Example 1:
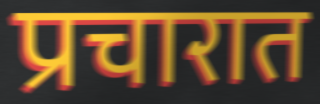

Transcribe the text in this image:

प्रचारात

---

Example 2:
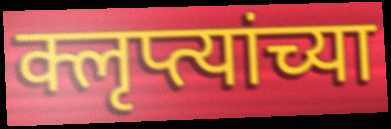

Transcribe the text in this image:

क्लृप्त्यांच्या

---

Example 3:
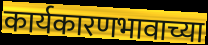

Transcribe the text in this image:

कार्यकारणभावाच्या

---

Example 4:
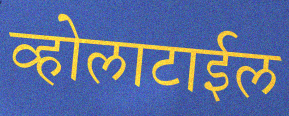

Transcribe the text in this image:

व्होलाटाईल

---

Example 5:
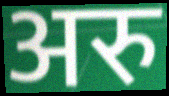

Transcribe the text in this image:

अरु